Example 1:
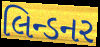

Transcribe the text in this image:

લિન્ડનર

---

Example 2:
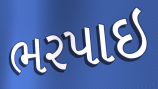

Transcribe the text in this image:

ભરપાઇ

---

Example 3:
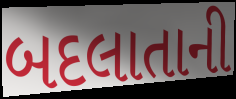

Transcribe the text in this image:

બદલાતાની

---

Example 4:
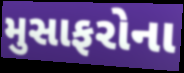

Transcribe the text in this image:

મુસાફરોના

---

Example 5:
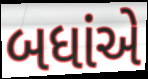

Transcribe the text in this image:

બધાંએ